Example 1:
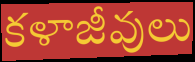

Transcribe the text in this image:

కళాజీవులు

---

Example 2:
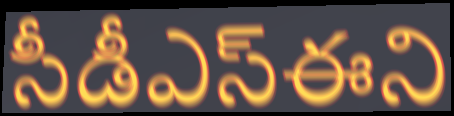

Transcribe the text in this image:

సీడీఎస్ఈని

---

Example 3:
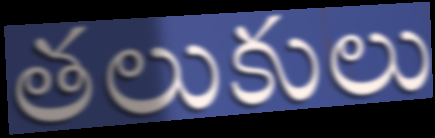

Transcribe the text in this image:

తలుకులు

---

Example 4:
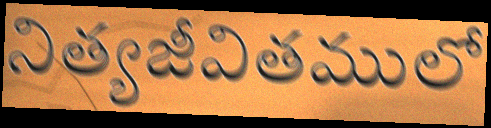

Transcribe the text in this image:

నిత్యజీవితములో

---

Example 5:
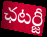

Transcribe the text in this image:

ఛటర్జీ